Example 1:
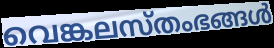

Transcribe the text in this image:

വെങ്കലസ്തംഭങ്ങൾ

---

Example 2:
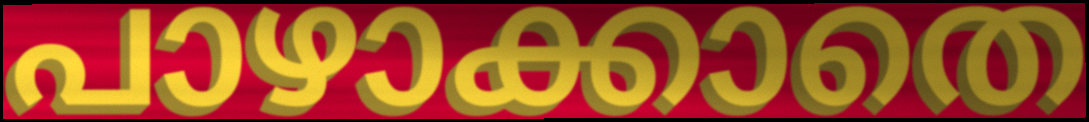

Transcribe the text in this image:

പാഴാക്കാതെ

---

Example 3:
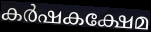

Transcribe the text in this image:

കർഷകക്ഷേമ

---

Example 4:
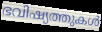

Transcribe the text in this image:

ഭവിഷ്യത്തുകൾ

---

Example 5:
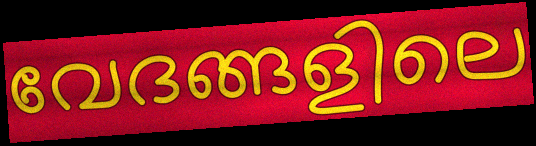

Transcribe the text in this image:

വേദങ്ങളിലെ